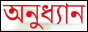
অনুধ্যান